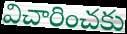
విచారించకు